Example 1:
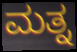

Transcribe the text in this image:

ಮತ್ನ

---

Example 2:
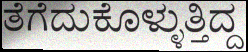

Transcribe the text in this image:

ತೆಗೆದುಕೊಳ್ಳುತ್ತಿದ್ದ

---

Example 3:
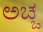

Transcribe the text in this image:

ಅಚ್ಚ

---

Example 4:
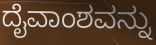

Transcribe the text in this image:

ದೈವಾಂಶವನ್ನು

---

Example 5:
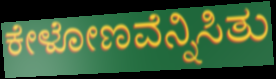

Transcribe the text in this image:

ಕೇಳೋಣವೆನ್ನಿಸಿತು